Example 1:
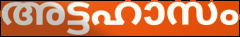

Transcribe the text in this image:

അട്ടഹാസം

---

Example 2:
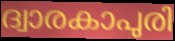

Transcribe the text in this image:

ദ്വാരകാപുരി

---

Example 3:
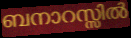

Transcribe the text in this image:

ബനാറസ്സിൽ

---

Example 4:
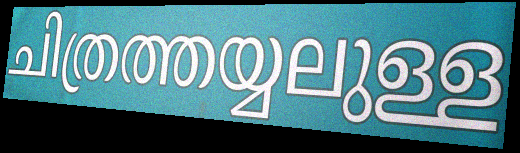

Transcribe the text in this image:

ചിത്രത്തയ്യലുള്ള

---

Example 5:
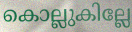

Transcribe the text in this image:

കൊല്ലുകില്ലേ